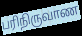
பரிநிருவாண